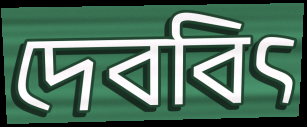
দেববিৎ